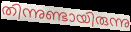
തിന്നുണ്ടായിരുന്നു